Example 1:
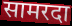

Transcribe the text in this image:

सामरदा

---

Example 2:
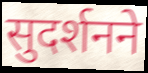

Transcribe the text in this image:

सुदर्शनने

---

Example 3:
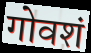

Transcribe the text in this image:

गोवशं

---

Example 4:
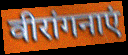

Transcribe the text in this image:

वीरांगनाएं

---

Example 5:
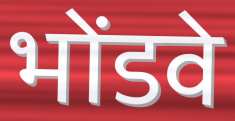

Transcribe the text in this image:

भोंडवे